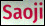
Saoji